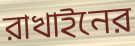
রাখাইনের